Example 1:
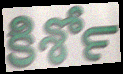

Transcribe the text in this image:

కిశోర్‍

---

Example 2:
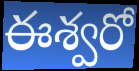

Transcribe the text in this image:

ఈశ్వరో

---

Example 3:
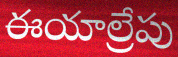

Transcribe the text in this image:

ఈయాల్రేపు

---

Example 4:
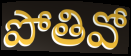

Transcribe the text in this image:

పోతివో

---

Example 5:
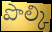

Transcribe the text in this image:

పొల్కి